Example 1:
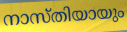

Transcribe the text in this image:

നാസ്തിയായും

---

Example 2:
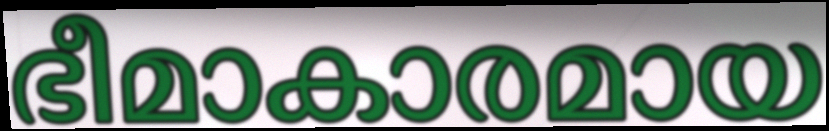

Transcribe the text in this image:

ഭീമാകാരമായ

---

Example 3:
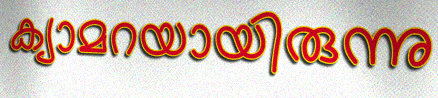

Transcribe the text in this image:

ക്യാമറയായിരുന്നു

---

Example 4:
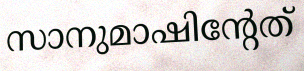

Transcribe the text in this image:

സാനുമാഷിന്റേത്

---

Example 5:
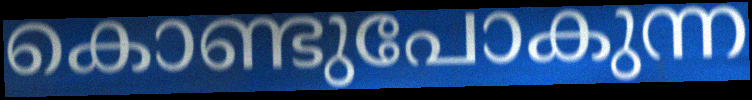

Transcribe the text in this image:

കൊണ്ടുപോകുന്ന